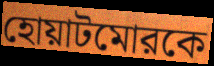
হোয়াটমোরকে